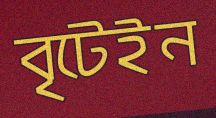
বৃটেইন